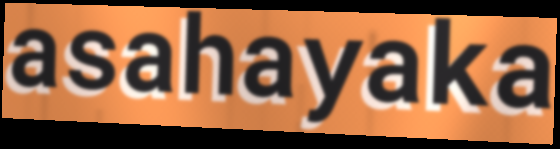
asahayaka